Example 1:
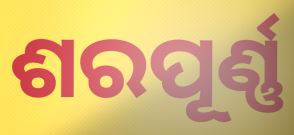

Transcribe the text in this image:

ଶରପୂର୍ଣ୍ଣ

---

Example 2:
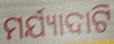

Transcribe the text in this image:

ମର୍ଯ୍ୟାଦାଟି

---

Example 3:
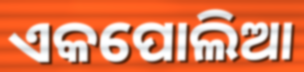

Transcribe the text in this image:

ଏକପୋଲିଆ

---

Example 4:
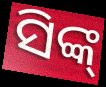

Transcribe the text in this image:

ସିଙ୍କ୍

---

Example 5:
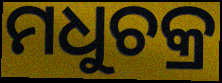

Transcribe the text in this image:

ମଧୁଚକ୍ର